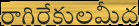
రాగిరేకులమీద